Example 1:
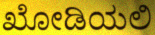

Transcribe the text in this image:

ಖೋಡಿಯಲಿ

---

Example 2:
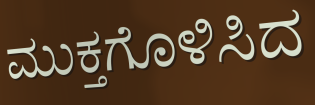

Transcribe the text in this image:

ಮುಕ್ತಗೊಳಿಸಿದ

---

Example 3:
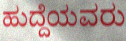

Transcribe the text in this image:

ಹುದ್ದೆಯವರು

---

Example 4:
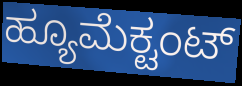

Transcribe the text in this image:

ಹ್ಯೂಮೆಕ್ಟಂಟ್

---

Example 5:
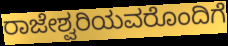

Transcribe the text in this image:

ರಾಜೇಶ್ವರಿಯವರೊಂದಿಗೆ